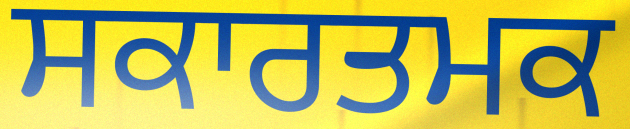
ਸਕਾਰਤਮਕ